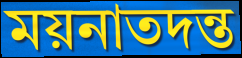
ময়নাতদন্ত